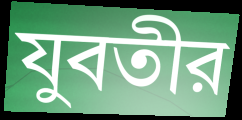
যুবতীর